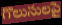
గొలుసులపై